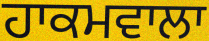
ਹਾਕਮਵਾਲਾ